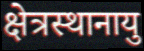
क्षेत्रस्थानायु